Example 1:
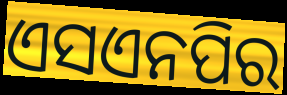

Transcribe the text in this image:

ଏସଏନପିର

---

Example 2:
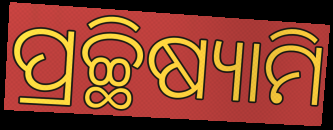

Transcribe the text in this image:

ପ୍ରଚ୍ଛିଷ୍ୟାମି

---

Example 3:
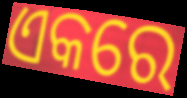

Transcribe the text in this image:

ଏକରେ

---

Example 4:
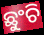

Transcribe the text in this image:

ଛୁଂଚି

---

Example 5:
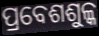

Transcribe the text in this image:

ପ୍ରବେଶଶୁଳ୍କ